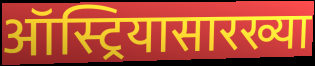
ऑस्ट्रियासारख्या